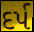
દર્પ